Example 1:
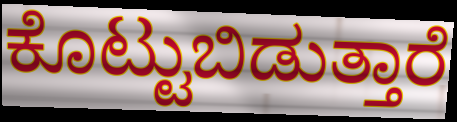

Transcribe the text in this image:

ಕೊಟ್ಟುಬಿಡುತ್ತಾರೆ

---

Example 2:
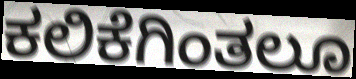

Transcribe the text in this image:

ಕಲಿಕೆಗಿಂತಲೂ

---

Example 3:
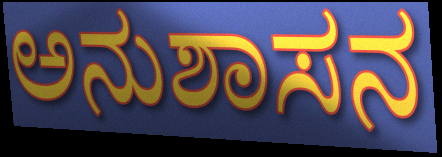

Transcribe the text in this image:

ಅನುಶಾಸನ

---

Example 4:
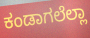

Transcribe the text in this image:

ಕಂಡಾಗಲೆಲ್ಲಾ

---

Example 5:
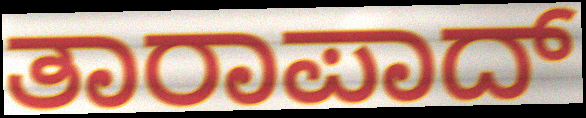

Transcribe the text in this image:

ತಾರಾಪಾದ್